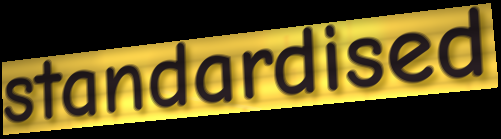
standardised